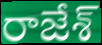
రాజేశ్